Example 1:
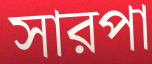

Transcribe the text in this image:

সারপা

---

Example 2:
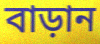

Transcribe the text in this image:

বাড়ান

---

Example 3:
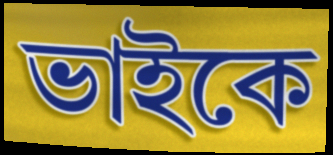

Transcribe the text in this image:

ভাইকে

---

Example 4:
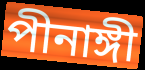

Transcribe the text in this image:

পীনাঙ্গী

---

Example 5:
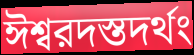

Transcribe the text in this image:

ঈশ্বরদস্তদর্থং